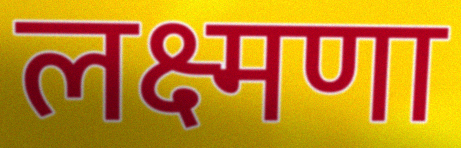
लक्ष्मणा